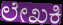
ಲೇಖಕಿ